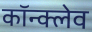
कॉन्क्लेव